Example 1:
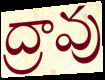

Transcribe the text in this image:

ద్రావు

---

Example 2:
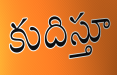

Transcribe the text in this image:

కుదిస్తూ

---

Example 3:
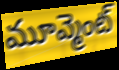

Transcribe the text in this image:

మూవ్మెంట్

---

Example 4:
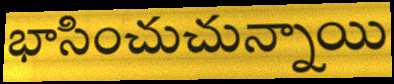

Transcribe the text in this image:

భాసించుచున్నాయి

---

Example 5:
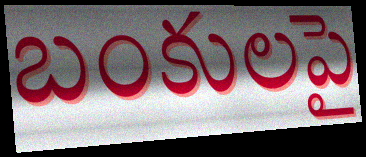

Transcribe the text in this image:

బంకులపై